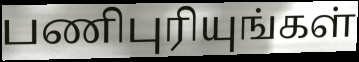
பணிபுரியுங்கள்